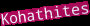
Kohathites